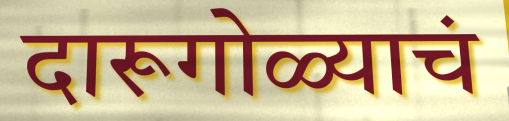
दारूगोळ्याचं